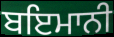
ਬਇਮਾਨੀ